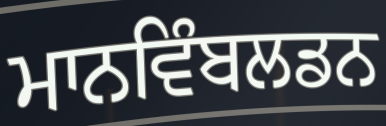
ਮਾਨਵਿੰਬਲਡਨ